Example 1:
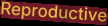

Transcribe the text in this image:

Reproductive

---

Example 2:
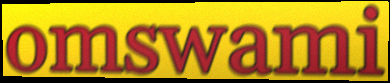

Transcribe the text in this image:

omswami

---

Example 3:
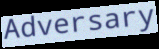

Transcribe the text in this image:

Adversary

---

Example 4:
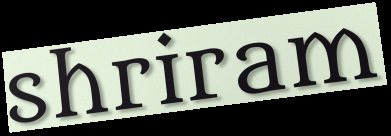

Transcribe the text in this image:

shriram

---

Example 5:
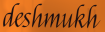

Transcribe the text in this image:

deshmukh